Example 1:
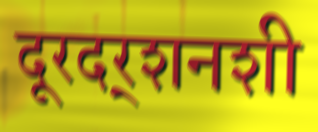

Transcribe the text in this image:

दूरदर्शनशी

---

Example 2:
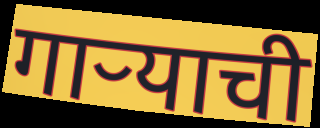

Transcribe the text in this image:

गाऱ्याची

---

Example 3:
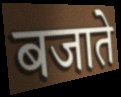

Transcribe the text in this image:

बजाते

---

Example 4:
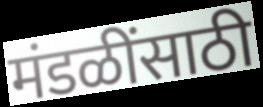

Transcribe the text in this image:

मंडळींसाठी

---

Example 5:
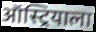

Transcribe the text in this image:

ऑस्ट्रियाला